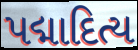
પદ્માદિત્ય